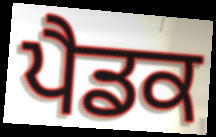
ਪੈਡਕ